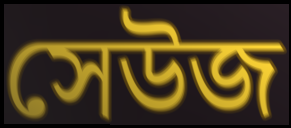
সেউজ